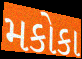
મકોકા